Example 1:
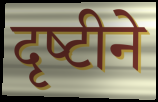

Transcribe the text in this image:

दृष्‍टीने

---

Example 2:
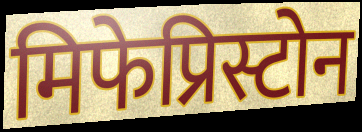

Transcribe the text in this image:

मिफेप्रिस्टोन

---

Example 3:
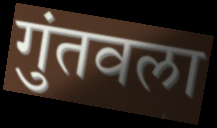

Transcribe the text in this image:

गुंतवला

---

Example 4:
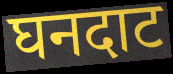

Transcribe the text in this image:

घनदाट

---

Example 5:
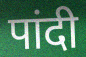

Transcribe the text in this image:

पांदी